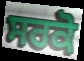
ਸਰਕੋ